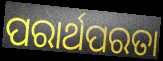
ପରାର୍ଥପରତା